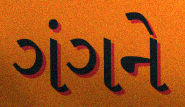
ગંગને